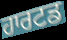
ਹਾਰਟਡ